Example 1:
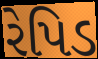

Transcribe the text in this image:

રેપિડ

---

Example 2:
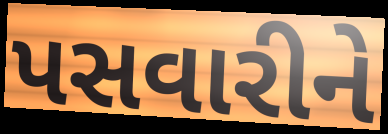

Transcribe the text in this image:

પસવારીને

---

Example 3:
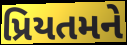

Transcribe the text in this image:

પ્રિયતમને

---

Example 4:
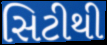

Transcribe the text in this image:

સિટીથી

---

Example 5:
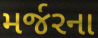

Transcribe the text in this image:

મર્જરના